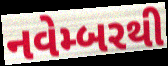
નવેમ્બરથી